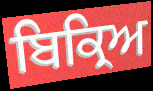
ਬਿਕ੍ਰਿਅ